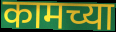
कामच्या